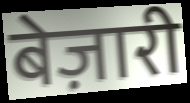
बेज़ारी